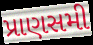
પ્રાણસમી